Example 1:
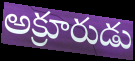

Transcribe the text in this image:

అక్రూరుడు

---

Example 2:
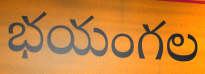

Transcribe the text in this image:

భయంగల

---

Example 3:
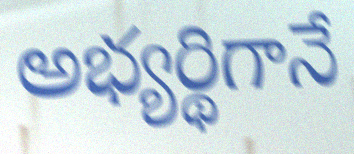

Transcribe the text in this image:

అభ్యర్థిగానే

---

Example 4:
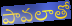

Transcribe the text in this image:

పావలాతో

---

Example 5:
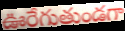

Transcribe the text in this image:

ఊరేగుతుండగా